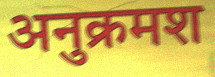
अनुक्रमश